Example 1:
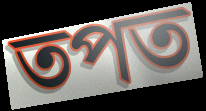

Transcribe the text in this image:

তপত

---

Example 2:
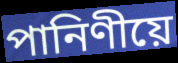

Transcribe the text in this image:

পানিণীয়ে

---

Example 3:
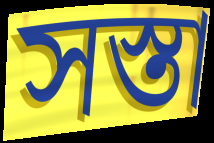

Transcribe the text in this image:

সস্তা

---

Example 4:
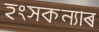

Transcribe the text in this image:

হংসকন্যাৰ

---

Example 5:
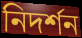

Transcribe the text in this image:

নিদৰ্শন